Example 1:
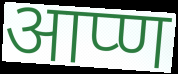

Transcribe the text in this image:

आप्ण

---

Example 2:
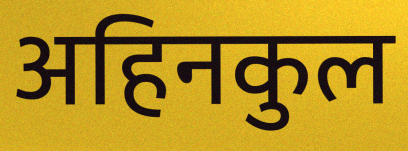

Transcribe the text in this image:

अहिनकुल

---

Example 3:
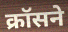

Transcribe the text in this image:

क्रॉसने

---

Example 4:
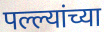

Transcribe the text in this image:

पल्ल्यांच्या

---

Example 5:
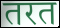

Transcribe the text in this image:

तरत